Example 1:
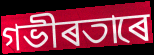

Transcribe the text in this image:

গভীৰতাৰে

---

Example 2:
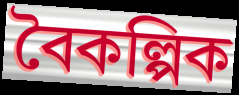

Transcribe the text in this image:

বৈকল্পিক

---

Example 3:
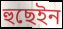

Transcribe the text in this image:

হুছেইন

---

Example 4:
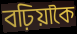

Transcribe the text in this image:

বঢ়িয়াকৈ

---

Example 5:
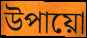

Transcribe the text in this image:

উপায়ো